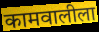
कामवालीला